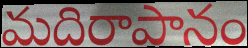
మదిరాపానం